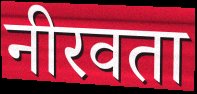
नीरवता